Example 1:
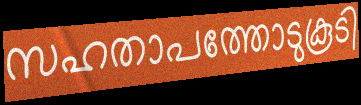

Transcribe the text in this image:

സഹതാപത്തോടുകൂടി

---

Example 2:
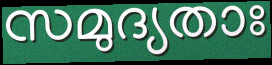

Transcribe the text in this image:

സമുദ്യതാഃ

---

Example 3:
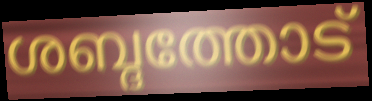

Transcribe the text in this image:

ശബ്ദത്തോട്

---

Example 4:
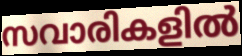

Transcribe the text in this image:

സവാരികളിൽ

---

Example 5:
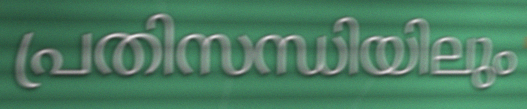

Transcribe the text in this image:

പ്രതിസന്ധിയിലും